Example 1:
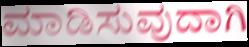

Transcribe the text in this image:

ಮಾಡಿಸುವುದಾಗಿ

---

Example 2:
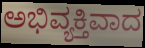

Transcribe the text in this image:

ಅಭಿವ್ಯಕ್ತಿವಾದ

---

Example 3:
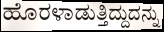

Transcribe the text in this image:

ಹೊರಳಾಡುತ್ತಿದ್ದುದನ್ನು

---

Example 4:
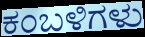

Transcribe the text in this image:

ಕಂಬಳಿಗಳು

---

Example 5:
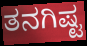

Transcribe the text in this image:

ತನಗಿಷ್ಟ